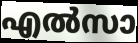
എൽസാ